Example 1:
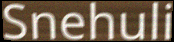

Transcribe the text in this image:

Snehuli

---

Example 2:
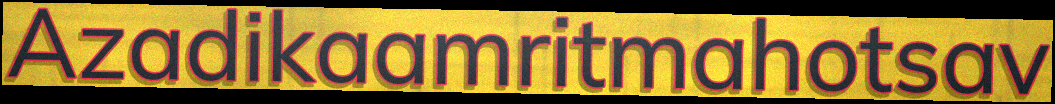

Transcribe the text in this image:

Azadikaamritmahotsav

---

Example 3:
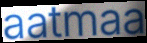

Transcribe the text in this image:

aatmaa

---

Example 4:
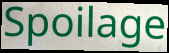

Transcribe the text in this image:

Spoilage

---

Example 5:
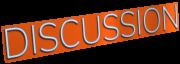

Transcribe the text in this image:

DISCUSSION